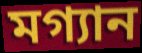
মগ্যান